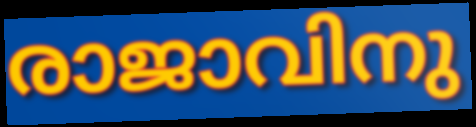
രാജാവിനു